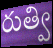
రుత్వి